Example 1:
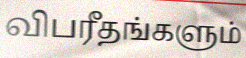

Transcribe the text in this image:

விபரீதங்களும்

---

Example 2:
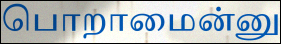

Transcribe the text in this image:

பொறாமைன்னு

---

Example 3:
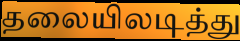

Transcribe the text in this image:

தலையிலடித்து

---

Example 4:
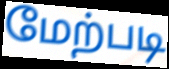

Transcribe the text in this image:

மேற்படி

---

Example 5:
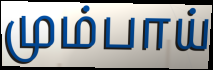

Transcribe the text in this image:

மும்பாய்